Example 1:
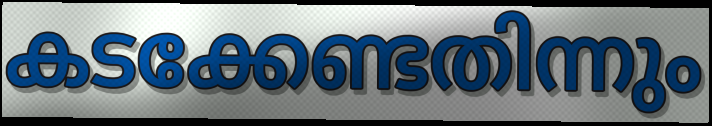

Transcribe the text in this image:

കടക്കേണ്ടതിന്നും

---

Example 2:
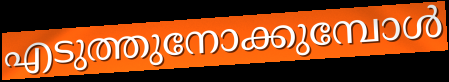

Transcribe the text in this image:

എടുത്തുനോക്കുമ്പോൾ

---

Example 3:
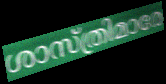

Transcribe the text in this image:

ശാസ്ത്രിമാരേ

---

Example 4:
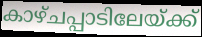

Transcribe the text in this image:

കാഴ്ചപ്പാടിലേയ്ക്ക്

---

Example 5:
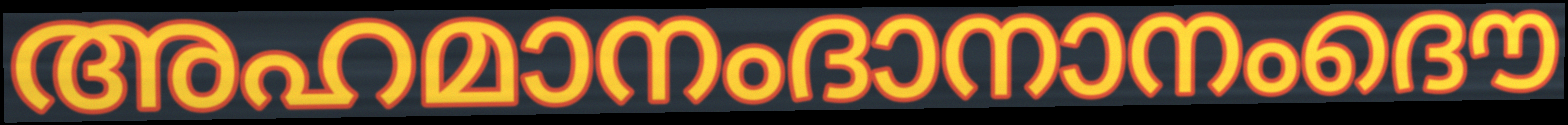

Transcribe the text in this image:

അഹമാനംദാനാനംദൌ